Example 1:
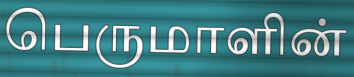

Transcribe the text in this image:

பெருமாளின்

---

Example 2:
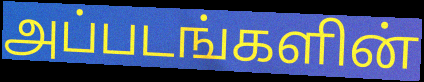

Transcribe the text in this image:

அப்படங்களின்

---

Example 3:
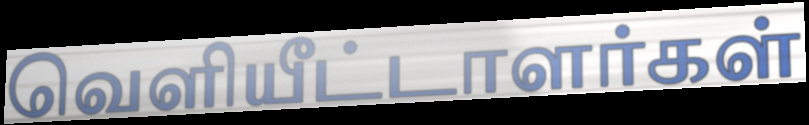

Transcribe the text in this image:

வெளியீட்டாளர்கள்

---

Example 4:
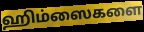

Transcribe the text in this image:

ஹிம்ஸைகளை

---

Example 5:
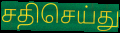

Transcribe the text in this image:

சதிசெய்து